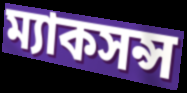
ম্যাকসন্স